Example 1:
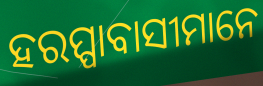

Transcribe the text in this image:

ହରପ୍ପାବାସୀମାନେ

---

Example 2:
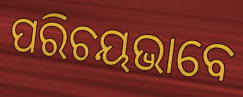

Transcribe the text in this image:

ପରିଚୟଭାବେ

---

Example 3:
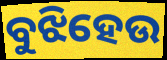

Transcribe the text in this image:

ବୁଝିହେଉ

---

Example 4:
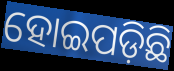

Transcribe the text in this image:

ହୋଇପଡ଼ିଛି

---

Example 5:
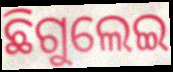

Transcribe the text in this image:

ଛିଗୁଲେଇ